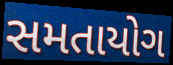
સમતાયોગ